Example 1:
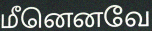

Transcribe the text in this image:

மீனெனவே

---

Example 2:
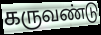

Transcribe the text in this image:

கருவண்டு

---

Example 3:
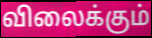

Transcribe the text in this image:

விலைக்கும்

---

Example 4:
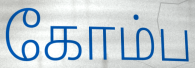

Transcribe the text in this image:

கோம்ப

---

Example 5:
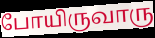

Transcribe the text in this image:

போயிருவாரு